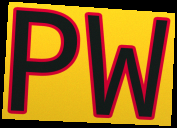
PW